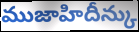
ముజాహిదీన్కు